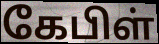
கேபிள்